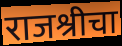
राजश्रीचा